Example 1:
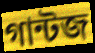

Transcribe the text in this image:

গান্টজ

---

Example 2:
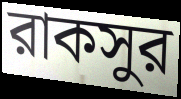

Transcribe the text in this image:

রাকসুর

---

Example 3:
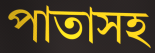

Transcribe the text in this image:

পাতাসহ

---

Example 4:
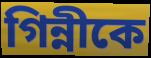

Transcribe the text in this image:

গিন্নীকে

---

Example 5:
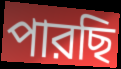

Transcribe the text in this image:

পারছি